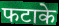
फटाके